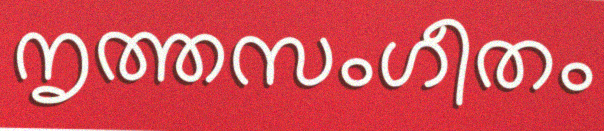
നൃത്തസംഗീതം